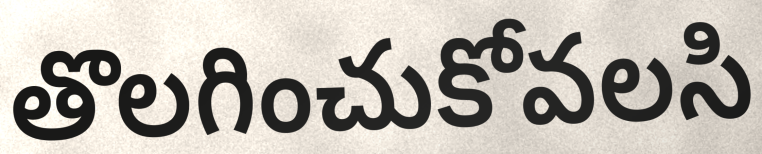
తొలగించుకోవలసి